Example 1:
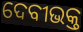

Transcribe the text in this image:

ଦେବୀଭକ୍ତ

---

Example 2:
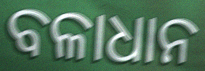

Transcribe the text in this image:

ବଳାଧାନ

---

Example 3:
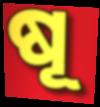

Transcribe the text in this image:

ଷୂ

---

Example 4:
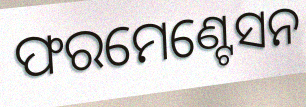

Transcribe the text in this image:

ଫରମେଣ୍ଟେସନ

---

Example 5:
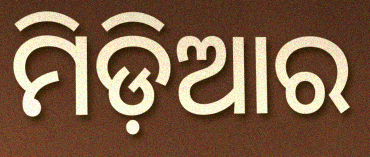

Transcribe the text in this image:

ମିଡ଼ିଆର